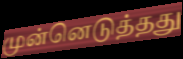
முன்னெடுத்தது